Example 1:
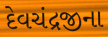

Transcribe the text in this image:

દેવચંદ્રજીના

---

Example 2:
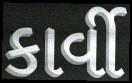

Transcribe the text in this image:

કાર્વી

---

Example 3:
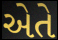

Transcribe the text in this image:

એતે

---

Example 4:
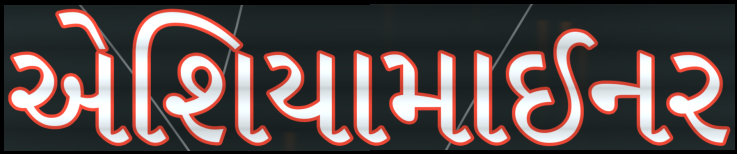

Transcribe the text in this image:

એશિયામાઈનર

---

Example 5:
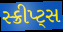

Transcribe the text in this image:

સ્ક્રીપ્ટ્સ